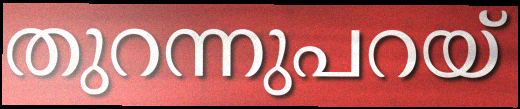
തുറന്നുപറയ്